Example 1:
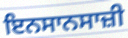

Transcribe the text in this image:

ਇਨਸਾਨਸਾਜ਼ੀ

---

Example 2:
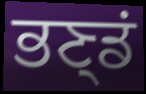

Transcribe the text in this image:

ਭਣ੍ਡਂ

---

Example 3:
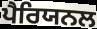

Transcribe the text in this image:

ਪੈਰਿਯਨਲ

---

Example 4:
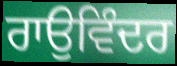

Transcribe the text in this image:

ਰਾਉਵਿੰਦਰ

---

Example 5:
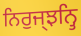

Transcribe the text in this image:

ਨਿਰੁਜ੍ਝਨ੍ਤਿ